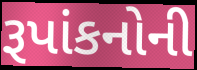
રૂપાંકનોની